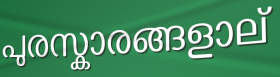
പുരസ്കാരങ്ങളാല്